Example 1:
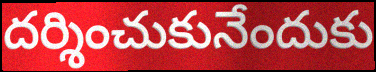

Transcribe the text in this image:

దర్శించుకునేందుకు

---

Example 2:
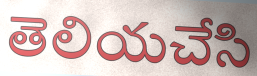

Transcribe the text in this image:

తెలియచేసి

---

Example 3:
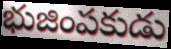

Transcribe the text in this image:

భుజింపకుడు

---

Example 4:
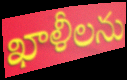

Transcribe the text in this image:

ఖాళీలను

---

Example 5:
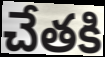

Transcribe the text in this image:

చేతకి